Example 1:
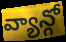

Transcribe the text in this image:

వ్యాన్గో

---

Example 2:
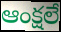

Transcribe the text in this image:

ఆంక్షలే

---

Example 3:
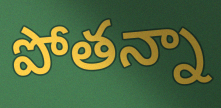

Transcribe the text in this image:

పోతన్నా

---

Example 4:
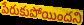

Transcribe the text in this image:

పేరుకుపోయిందని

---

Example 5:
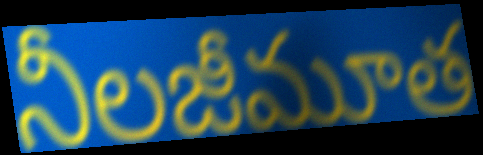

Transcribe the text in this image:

నీలజీమూత